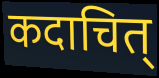
कदाचित्